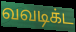
வவடிக்ட